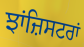
ਝਾਂਜ਼ਿਸਟਰਾਂ